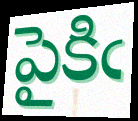
పైకిఁ